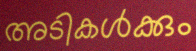
അടികൾക്കും